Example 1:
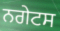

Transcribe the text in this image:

ਨਗੇਟਸ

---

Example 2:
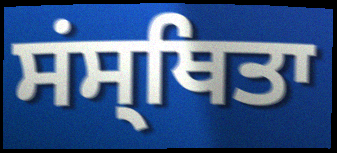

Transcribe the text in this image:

ਸਂਸ੍ਥਿਤਾ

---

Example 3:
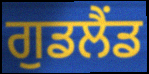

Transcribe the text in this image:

ਗੁਡਲੈਂਡ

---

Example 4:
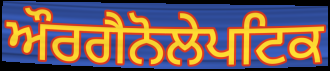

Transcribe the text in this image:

ਔਰਗੈਨੋਲੇਪਟਿਕ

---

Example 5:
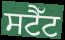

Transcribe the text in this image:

ਸਟੈੱਟ